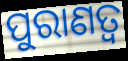
ପୁରାଣତ୍ୱ